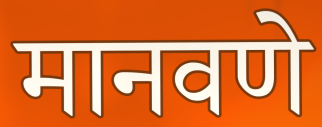
मानवणे